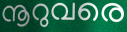
നൂറുവരെ